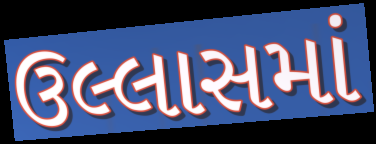
ઉલ્લાસમાં